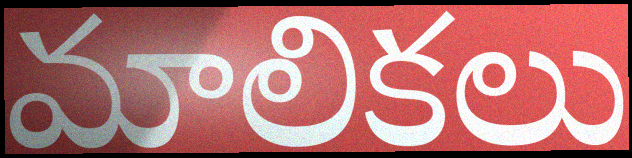
మాలికలు